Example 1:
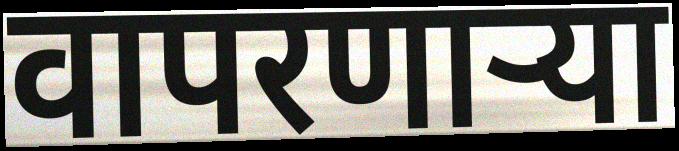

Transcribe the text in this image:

वापरणाऱ्या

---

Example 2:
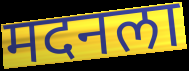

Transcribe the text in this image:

मदनला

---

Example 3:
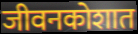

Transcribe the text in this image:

जीवनकोशात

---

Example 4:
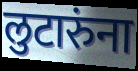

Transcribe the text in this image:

लुटारुंना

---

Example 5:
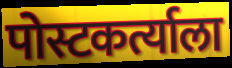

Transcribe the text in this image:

पोस्टकर्त्याला